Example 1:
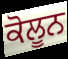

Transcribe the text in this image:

ਕੋਲੂਨ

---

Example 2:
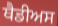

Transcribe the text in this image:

ਥੈਡੀਅਸ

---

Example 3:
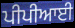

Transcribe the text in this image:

ਪੀਪੀਆਈ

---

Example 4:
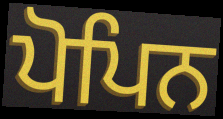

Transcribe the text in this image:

ਪੋਪਿਨ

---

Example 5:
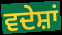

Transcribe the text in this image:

ਵਦੇਸ਼ਾਂ